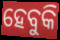
ହେବୁକି